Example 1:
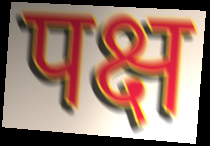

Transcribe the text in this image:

पक्ष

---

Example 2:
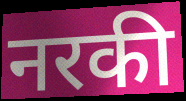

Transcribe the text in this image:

नरकी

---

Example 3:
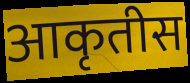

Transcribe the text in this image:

आकृतीस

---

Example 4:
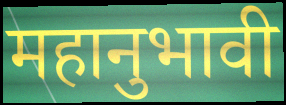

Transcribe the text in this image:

महानुभावी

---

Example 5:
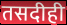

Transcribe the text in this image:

तसदीही